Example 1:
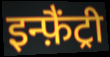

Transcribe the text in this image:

इन्फ़ैंट्री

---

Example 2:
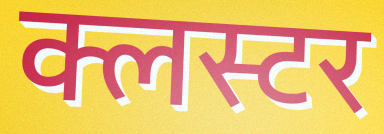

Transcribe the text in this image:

क्लस्टर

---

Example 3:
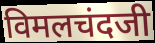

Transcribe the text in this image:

विमलचंदजी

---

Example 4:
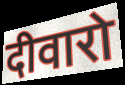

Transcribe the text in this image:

दीवारो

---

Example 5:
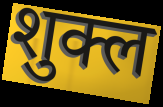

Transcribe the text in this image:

शुक्ल